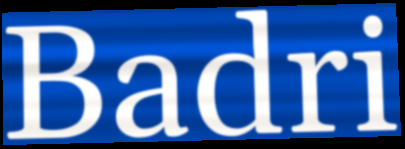
Badri